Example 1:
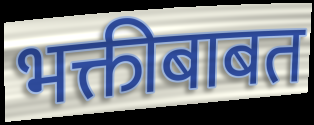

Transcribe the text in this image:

भक्तीबाबत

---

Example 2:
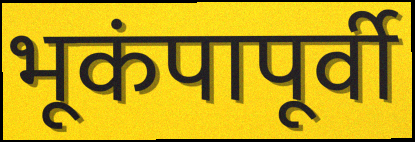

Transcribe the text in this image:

भूकंपापूर्वी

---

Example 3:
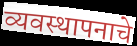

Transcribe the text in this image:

व्यवस्थापनाचे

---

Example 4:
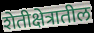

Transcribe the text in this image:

शेतीक्षेत्रातील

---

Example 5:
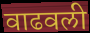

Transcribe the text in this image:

वाढवली